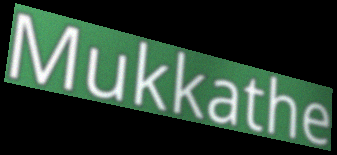
Mukkathe